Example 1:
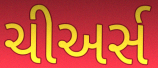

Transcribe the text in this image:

ચીઅર્સ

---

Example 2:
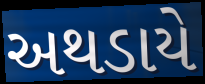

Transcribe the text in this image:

અથડાયે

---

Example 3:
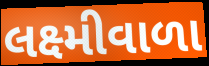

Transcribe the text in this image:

લક્ષ્મીવાળા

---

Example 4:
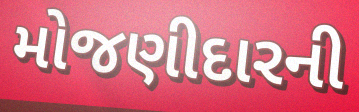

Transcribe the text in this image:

મોજણીદારની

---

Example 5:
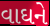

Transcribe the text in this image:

વાઘને